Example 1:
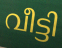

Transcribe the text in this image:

വീട്ടി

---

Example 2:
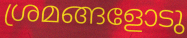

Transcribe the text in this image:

ശ്രമങ്ങളോടു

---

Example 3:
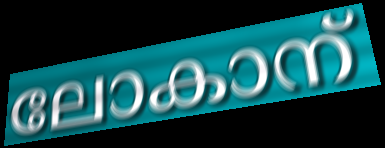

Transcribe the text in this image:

ലോകാന്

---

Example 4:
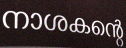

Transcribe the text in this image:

നാശകന്റെ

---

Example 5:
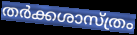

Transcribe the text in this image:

തർക്കശാസ്ത്രം